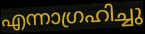
എന്നാഗ്രഹിച്ചു